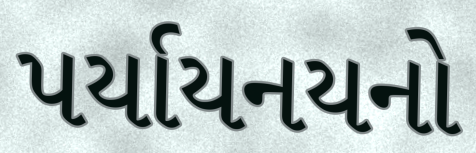
પર્યાયનયનો